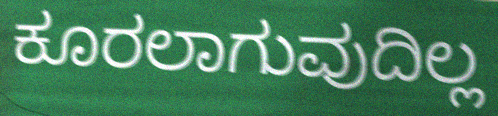
ಕೂರಲಾಗುವುದಿಲ್ಲ